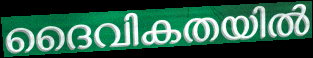
ദൈവികതയിൽ